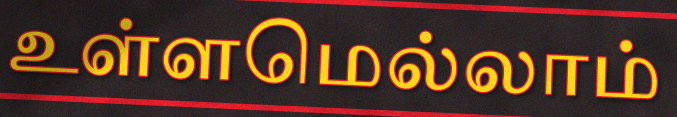
உள்ளமெல்லாம்